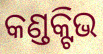
କଣ୍ଡକ୍ଟିଭ